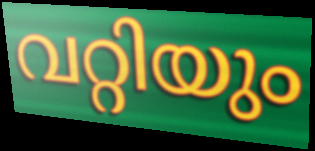
വറ്റിയും